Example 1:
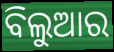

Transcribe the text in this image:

ବିଲୁଆର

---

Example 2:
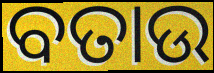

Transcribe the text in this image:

ବତାଉ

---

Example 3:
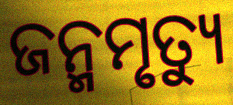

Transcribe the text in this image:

ଜନ୍ମମୃତ୍ୟୁ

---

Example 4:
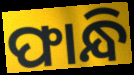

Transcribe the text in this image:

ଫାନ୍ଧି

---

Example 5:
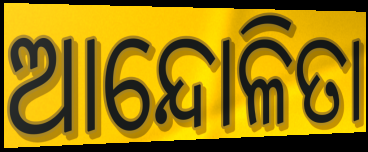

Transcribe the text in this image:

ଆନ୍ଦୋଳିତା